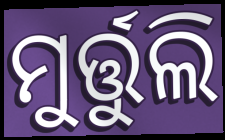
ମୁର୍ତ୍ତୁଲି